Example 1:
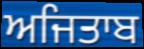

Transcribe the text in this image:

ਅਜਿਤਾਬ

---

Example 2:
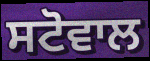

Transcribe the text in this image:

ਸਟੋਵਾਲ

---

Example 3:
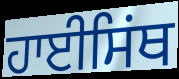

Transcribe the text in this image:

ਹਾਈਸਿਂਥ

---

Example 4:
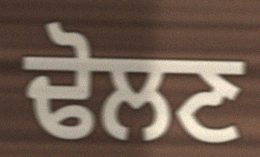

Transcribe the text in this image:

ਢੋਲਣ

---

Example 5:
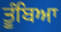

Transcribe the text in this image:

ਤੂੰਬਿਆ